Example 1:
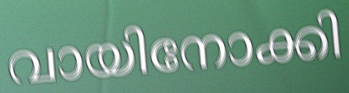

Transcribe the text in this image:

വായിനോക്കി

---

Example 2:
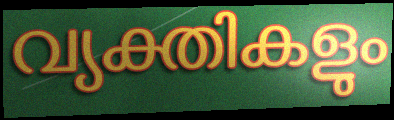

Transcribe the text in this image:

വ്യക്തികളും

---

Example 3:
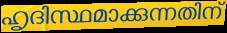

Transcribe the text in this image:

ഹൃദിസ്ഥമാക്കുന്നതിന്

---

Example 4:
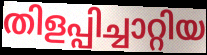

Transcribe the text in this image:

തിളപ്പിച്ചാറ്റിയ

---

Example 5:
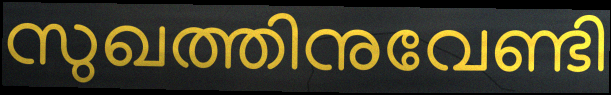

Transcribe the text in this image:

സുഖത്തിനുവേണ്ടി